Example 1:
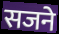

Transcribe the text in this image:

सजने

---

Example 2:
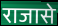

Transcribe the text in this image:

राजासे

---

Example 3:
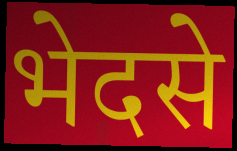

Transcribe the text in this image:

भेदसे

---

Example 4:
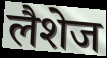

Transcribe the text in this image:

लैशेज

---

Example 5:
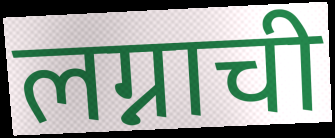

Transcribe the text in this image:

लग्नाची